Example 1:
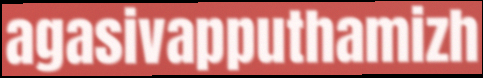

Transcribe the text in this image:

agasivapputhamizh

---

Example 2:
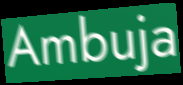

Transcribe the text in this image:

Ambuja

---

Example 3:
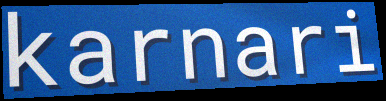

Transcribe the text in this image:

karnari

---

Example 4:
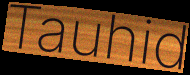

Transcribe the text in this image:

Tauhid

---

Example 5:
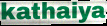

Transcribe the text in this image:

kathaiya